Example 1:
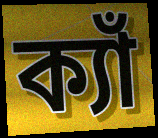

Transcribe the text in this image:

ক্যাঁ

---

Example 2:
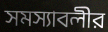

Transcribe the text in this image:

সমস্যাবলীর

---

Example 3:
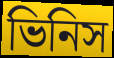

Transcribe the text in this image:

ভিনিস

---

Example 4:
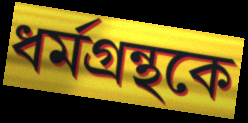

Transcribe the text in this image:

ধর্মগ্রন্থকে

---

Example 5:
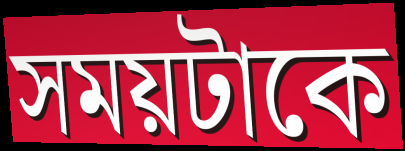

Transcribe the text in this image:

সময়টাকে